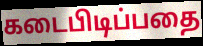
கடைபிடிப்பதை